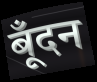
बूँदन